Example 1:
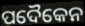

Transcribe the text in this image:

ପଦୈକେନ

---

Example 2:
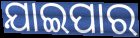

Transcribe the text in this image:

ଯାଇପାର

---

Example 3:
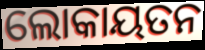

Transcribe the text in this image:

ଲୋକାୟତନ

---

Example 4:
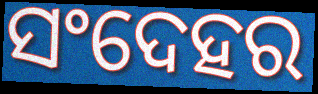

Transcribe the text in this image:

ସଂଦେହର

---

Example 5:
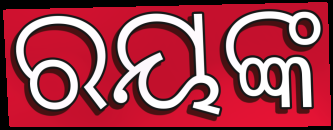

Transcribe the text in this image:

ରୟଙ୍କ